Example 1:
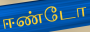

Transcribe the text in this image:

ஈண்டோ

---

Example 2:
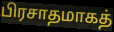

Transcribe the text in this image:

பிரசாதமாகத்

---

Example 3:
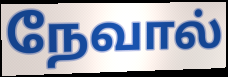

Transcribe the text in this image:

நேவால்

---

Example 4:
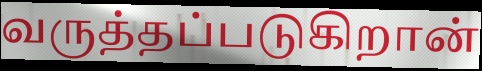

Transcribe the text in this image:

வருத்தப்படுகிறான்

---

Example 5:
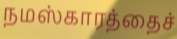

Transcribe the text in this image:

நமஸ்காரத்தைச்